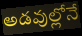
అడవుల్లోనే